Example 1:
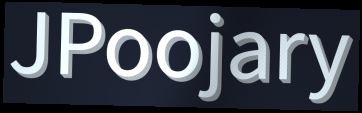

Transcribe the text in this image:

JPoojary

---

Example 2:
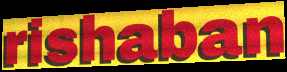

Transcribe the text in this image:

rishaban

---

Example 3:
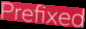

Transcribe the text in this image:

Prefixed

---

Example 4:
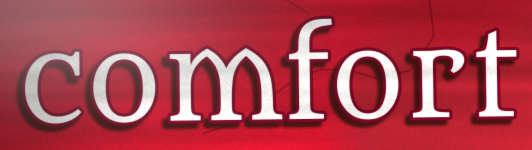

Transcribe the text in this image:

comfort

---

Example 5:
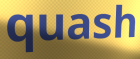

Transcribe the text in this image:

quash